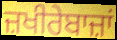
ਜ਼ਖੀਰੇਬਾਜ਼ਾਂ